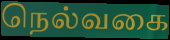
நெல்வகை